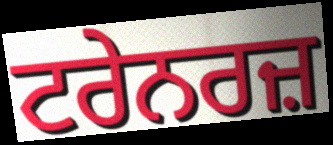
ਟਰੇਨਰਜ਼